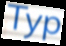
Typ